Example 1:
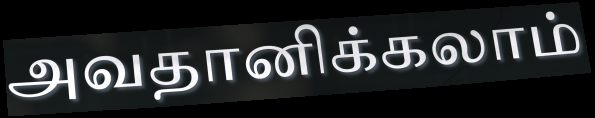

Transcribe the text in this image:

அவதானிக்கலாம்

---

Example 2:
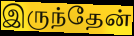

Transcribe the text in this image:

இருந்தேன்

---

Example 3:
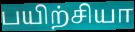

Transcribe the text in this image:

பயிற்சியா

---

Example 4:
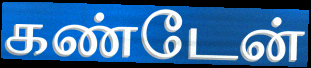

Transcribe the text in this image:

கண்டேன்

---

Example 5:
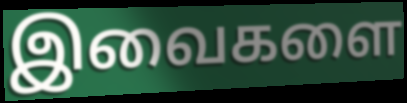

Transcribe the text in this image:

இவைகளை